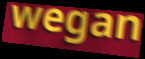
wegan